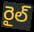
రైల్